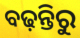
ବଢ଼ନ୍ତିରୁ